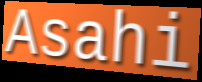
Asahi